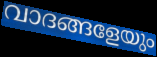
വാദങ്ങളേയും